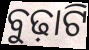
ବୁଢ଼ାଟି